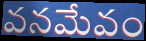
వనమేవం